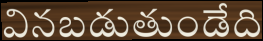
వినబడుతుండేది